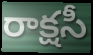
రాక్షసీ